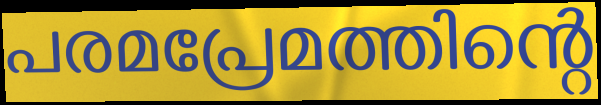
പരമപ്രേമത്തിന്റെ